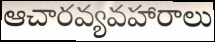
ఆచారవ్యవహారాలు